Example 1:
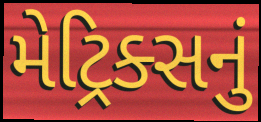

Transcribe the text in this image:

મેટ્રિક્સનું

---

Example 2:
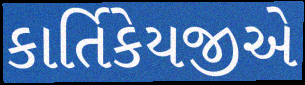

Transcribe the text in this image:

કાર્તિકેયજીએ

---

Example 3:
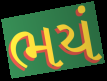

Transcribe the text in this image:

ભયં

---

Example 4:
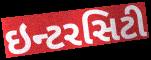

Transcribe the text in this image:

ઇન્ટરસિટી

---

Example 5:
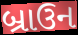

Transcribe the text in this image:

બ્રાઉન